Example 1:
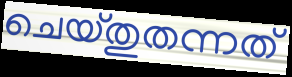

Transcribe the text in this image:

ചെയ്തുതന്നത്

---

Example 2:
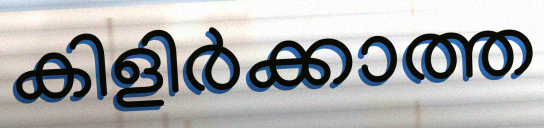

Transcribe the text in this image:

കിളിർക്കാത്ത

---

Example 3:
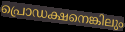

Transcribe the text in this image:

പ്രൊഡക്ഷനെങ്കിലും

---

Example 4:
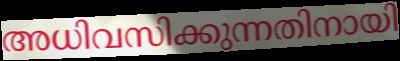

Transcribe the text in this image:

അധിവസിക്കുന്നതിനായി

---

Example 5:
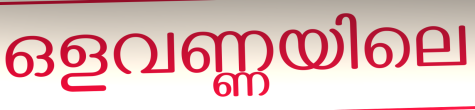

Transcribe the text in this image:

ഒളവണ്ണയിലെ